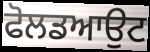
ਫੋਲਡਆਉਟ